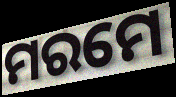
ମରମେ